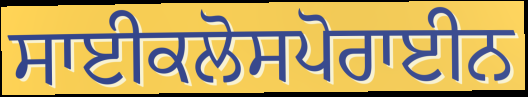
ਸਾਈਕਲੋਸਪੋਰਾਈਨ